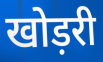
खोड़री